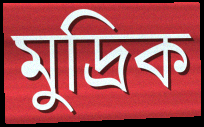
মুদ্রিক